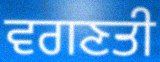
ਵਗਣਤੀ